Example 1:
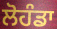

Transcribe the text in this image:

ਲੋਹੰਡਾ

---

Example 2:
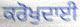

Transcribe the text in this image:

ਕਰੋਖੁਦਾਈ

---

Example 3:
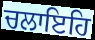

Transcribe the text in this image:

ਚਲਾਇਹਿ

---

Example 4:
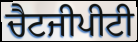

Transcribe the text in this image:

ਚੈਟਜੀਪੀਟੀ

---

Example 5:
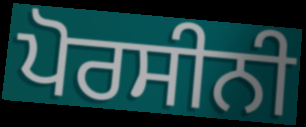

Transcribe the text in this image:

ਪੋਰਸੀਨੀ